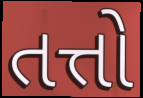
તત્તો